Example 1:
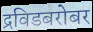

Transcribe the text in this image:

द्रविडबरोबर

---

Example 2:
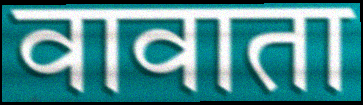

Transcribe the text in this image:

वावाता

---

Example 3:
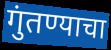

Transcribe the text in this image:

गुंतण्याचा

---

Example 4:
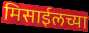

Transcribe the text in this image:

मिसाईलच्या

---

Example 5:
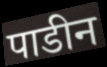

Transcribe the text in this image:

पाडीन